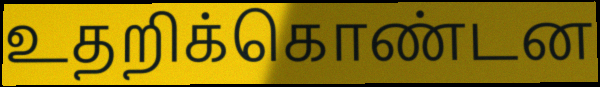
உதறிக்கொண்டன